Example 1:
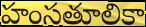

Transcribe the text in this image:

హంసతూలికా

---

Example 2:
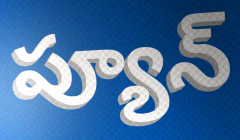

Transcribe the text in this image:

ప్యూన్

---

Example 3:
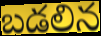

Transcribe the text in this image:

బడలిన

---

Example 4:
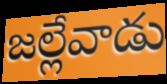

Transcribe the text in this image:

జల్లేవాడు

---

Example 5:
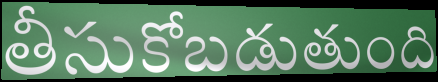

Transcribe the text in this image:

తీసుకోబడుతుంది